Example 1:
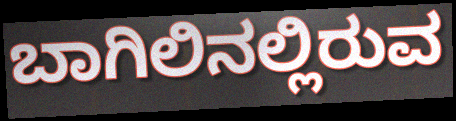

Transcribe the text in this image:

ಬಾಗಿಲಿನಲ್ಲಿರುವ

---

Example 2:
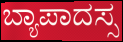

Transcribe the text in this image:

ಬ್ಯಾಪಾದಸ್ಸ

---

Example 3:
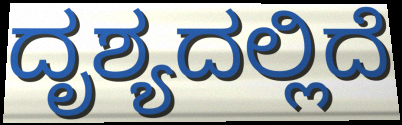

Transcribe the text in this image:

ದೃಶ್ಯದಲ್ಲಿದೆ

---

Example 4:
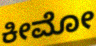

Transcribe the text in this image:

ಕೀಮೋ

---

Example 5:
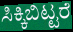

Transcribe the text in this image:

ಸಿಕ್ಕಿಬಿಟ್ಟರೆ